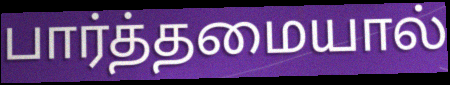
பார்த்தமையால்